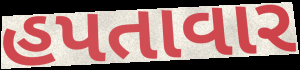
હપતાવાર